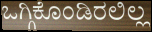
ಒಗ್ಗಿಕೊಂಡಿರಲಿಲ್ಲ